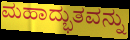
ಮಹಾದ್ಭುತವನ್ನು